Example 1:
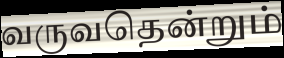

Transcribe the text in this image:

வருவதென்றும்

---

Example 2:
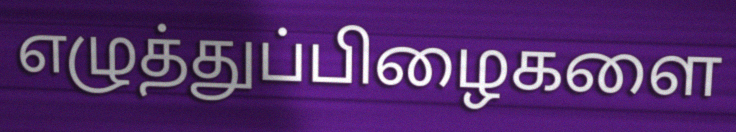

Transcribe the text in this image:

எழுத்துப்பிழைகளை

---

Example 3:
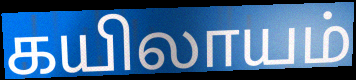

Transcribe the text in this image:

கயிலாயம்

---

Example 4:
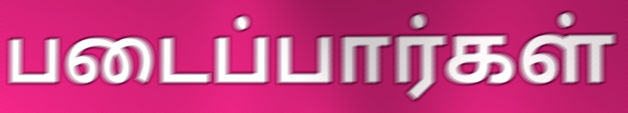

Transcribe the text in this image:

படைப்பார்கள்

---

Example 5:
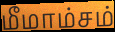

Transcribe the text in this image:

மீமாம்சம்